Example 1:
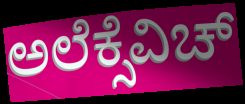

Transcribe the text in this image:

ಅಲೆಕ್ಸೆವಿಚ್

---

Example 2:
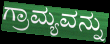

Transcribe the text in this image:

ಗ್ರಾಮ್ಯವನ್ನು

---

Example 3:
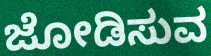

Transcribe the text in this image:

ಜೋಡಿಸುವ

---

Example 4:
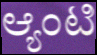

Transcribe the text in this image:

ಆ್ಯಂಟಿ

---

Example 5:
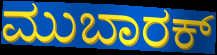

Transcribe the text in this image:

ಮುಬಾರಕ್